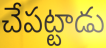
చేపట్టాడు